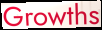
Growths